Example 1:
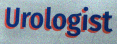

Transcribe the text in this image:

Urologist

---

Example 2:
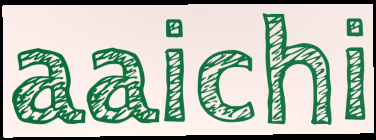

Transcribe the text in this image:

aaichi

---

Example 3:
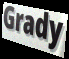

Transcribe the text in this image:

Grady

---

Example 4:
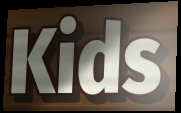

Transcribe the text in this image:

Kids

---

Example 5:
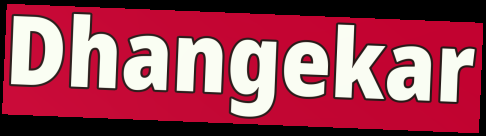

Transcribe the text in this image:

Dhangekar